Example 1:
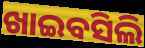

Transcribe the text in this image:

ଖାଇବସିଲି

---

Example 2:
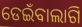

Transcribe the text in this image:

ଡେଇଁବାଲାଗି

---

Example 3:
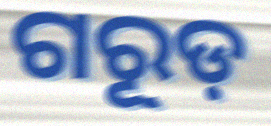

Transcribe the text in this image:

ଗରୂଡ଼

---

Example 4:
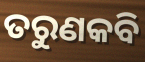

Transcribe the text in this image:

ତରୁଣକବି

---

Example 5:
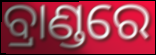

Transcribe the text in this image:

ବ୍ରାଣ୍ଡରେ